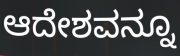
ಆದೇಶವನ್ನೂ